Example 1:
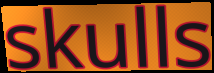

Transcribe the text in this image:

skulls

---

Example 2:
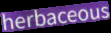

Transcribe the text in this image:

herbaceous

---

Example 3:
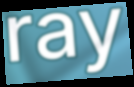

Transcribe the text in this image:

ray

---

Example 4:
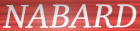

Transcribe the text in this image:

NABARD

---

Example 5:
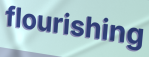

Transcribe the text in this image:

flourishing